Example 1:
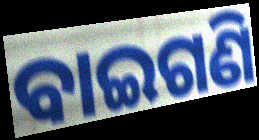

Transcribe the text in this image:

ବାଇଗଣି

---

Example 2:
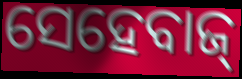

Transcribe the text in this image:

ସେହେବାଜ୍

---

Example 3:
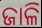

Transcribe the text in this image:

ଜାଳି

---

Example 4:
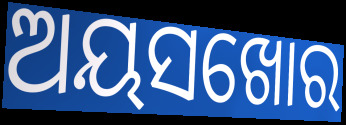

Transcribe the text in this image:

ଅୟସଖୋର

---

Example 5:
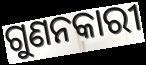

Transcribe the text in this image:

ଗୁଣନକାରୀ